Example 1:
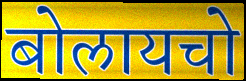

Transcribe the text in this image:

बोलायचो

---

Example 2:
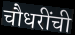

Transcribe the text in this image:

चौधरींची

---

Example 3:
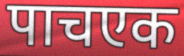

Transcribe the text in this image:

पाचएक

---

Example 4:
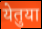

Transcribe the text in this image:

येतुया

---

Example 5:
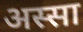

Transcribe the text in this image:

अस्सा